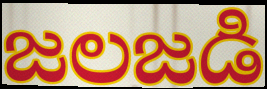
జలజడి